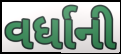
વર્ધાની